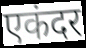
एकंदर